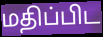
மதிப்பிட